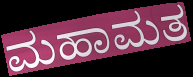
ಮಹಾಮತ